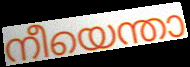
നീയെന്താ